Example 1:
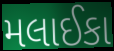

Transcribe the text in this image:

મલાઈકા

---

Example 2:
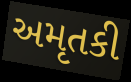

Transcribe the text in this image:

અમૃતકી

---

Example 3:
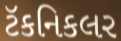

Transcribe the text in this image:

ટૅકનિકલર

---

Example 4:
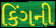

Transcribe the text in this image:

કિંગની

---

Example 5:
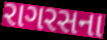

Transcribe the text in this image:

રાગરસના